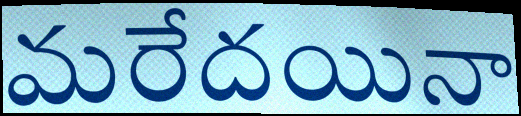
మరేదయినా